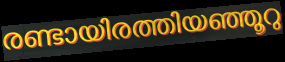
രണ്ടായിരത്തിയഞ്ഞൂറു